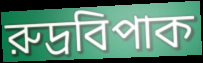
ৰুদ্ৰবিপাক